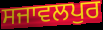
ਸਜਾਵਲਪੁਰ